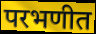
परभणीत